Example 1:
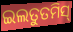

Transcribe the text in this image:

ଇଲତୁତମିସ୍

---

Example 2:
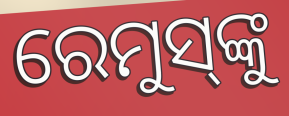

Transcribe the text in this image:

ରେମୁସ୍‌ଙ୍କୁ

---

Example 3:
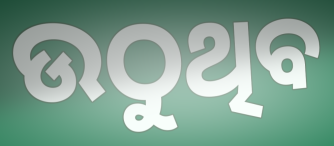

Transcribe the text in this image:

ଉଠୁଥିବ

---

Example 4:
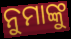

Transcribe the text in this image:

ନୁମାଙ୍କୁ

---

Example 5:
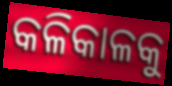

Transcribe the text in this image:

କଳିକାଳକୁ